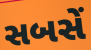
સબસેં